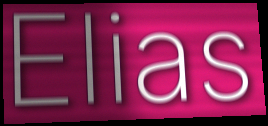
Elias